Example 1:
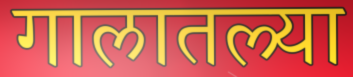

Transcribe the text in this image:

गालातल्या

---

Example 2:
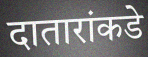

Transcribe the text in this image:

दातारांकडे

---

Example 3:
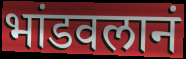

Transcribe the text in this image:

भांडवलानं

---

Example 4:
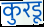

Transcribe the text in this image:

कुरडू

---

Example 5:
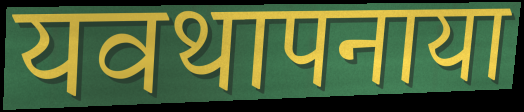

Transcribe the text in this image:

यवथापनाया